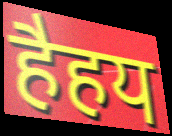
हैहय